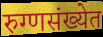
रुग्णसंख्येत